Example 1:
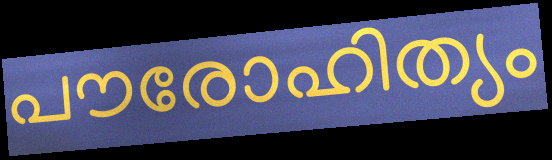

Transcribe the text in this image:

പൗരോഹിത്യം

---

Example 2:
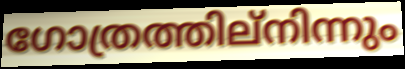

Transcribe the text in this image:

ഗോത്രത്തില്നിന്നും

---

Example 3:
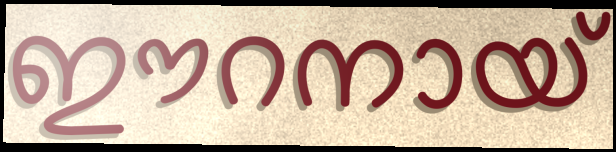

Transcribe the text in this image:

ഈറനായ്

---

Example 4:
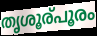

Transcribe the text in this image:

തൃശൂര്പൂരം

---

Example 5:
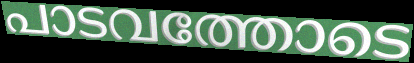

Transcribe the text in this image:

പാടവത്തോടെ